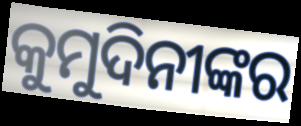
କୁମୁଦିନୀଙ୍କର